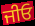
ਜੀਓ